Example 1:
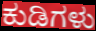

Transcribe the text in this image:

ಕುಡಿಗಳು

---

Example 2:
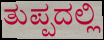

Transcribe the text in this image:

ತುಪ್ಪದಲ್ಲಿ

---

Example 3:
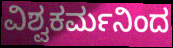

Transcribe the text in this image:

ವಿಶ್ವಕರ್ಮನಿಂದ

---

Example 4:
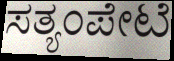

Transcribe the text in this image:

ಸತ್ಯಂಪೇಟೆ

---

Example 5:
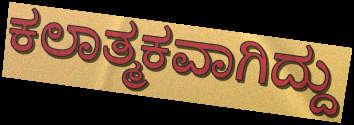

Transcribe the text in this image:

ಕಲಾತ್ಮಕವಾಗಿದ್ದು